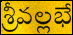
శ్రీవల్లభే